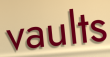
vaults